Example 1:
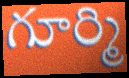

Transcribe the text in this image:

గూర్మి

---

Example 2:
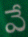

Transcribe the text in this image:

వే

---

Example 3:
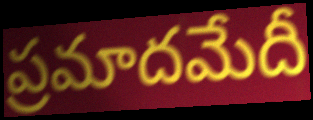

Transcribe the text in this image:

ప్రమాదమేదీ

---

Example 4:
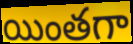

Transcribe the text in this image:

యింతగా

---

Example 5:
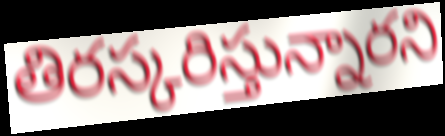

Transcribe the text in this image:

తిరస్కరిస్తున్నారని